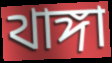
থাঙ্গা